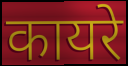
कायरे